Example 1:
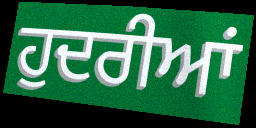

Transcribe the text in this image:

ਹੁਦਰੀਆਂ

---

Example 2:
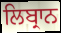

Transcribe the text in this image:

ਲਿਬ੍ਰਾਨ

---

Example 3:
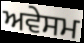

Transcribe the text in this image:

ਅਵੇਸਮ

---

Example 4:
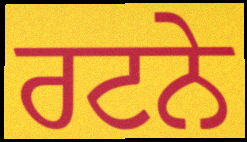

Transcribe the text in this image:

ਰਟਨੇ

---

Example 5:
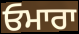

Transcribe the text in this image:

ਓਮਾਰਾ